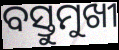
ବସ୍ତୁମୁଖୀ